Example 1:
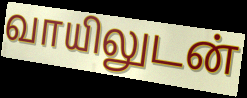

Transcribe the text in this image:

வாயிலுடன்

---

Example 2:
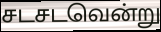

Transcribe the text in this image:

சடசடவென்று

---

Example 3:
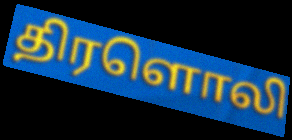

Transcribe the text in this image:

திரளொலி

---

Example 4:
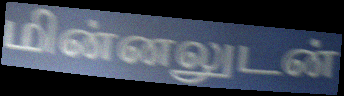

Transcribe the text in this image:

மின்னலுடன்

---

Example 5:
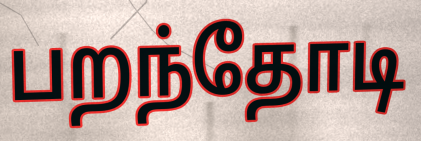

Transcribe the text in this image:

பறந்தோடி